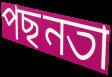
পছনতা